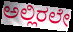
ಅಲ್ಲಿರಲೇ